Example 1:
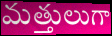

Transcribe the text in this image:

మత్తులుగా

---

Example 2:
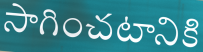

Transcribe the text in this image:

సాగించటానికి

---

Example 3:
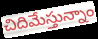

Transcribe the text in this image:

చిదిమేస్తున్నాం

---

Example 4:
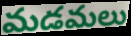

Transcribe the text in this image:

మడమలు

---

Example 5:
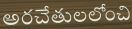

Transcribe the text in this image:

అరచేతులలోంచి